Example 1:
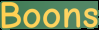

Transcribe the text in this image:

Boons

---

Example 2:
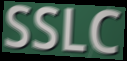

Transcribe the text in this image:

SSLC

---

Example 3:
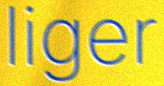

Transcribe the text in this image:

liger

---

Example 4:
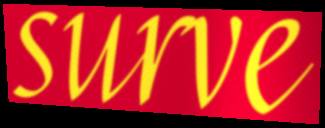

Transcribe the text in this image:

surve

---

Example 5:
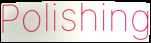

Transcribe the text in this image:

Polishing